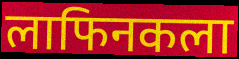
लाफिनकला